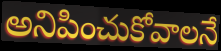
అనిపించుకోవాలనే